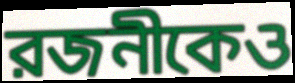
রজনীকেও